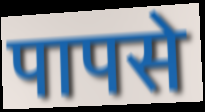
पापसे